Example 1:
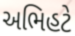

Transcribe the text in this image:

અભિહટે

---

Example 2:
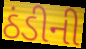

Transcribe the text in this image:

ઠંડીની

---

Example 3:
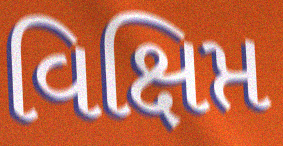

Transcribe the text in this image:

વિક્ષિપ્ત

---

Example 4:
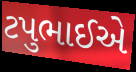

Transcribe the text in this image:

ટપુભાઈએ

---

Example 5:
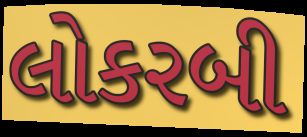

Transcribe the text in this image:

લોકરબી